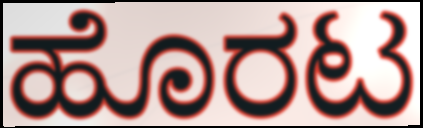
ಹೊರಟ